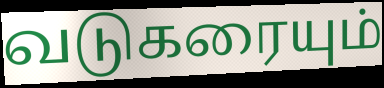
வடுகரையும்